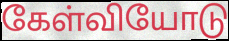
கேள்வியோடு